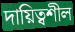
দায়িত্বশীল